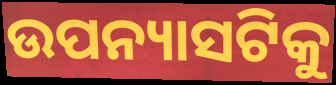
ଉପନ୍ୟାସଟିକୁ